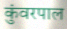
कुंवरपाल